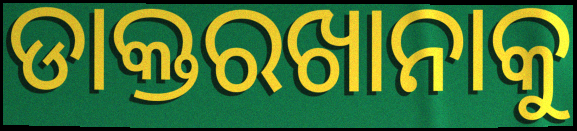
ଡାକ୍ତରଖାନାକୁ